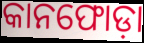
କାନଫୋଡ଼ା